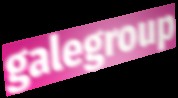
galegroup